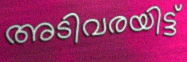
അടിവരയിട്ട്